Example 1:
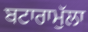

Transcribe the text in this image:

ਬਟਾਰਾਮੁੱਲਾ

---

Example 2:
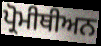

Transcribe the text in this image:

ਪ੍ਰੋਮੀਥੀਅਨ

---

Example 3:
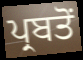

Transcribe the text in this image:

ਪ੍ਰਬਤੋਂ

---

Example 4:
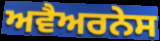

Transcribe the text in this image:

ਅਵੈਅਰਨੇਸ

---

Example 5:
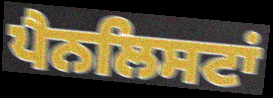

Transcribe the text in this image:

ਪੈਨਲਿਸਟਾਂ